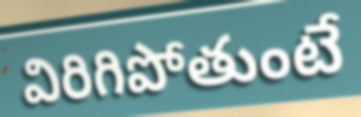
విరిగిపోతుంటే